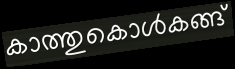
കാത്തുകൊൾകങ്ങ്